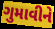
ગુમાવીને